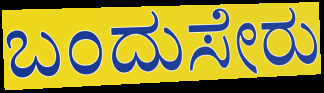
ಬಂದುಸೇರು